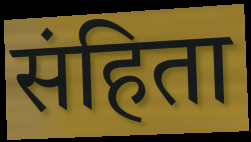
संहिता